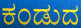
ಕಂಡುದ